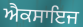
ਐਕਸਾਇਜ